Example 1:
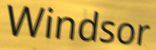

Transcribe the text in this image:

Windsor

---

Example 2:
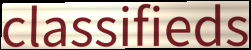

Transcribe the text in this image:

classifieds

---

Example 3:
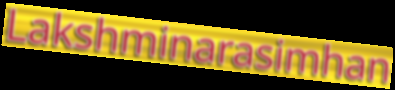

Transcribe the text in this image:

Lakshminarasimhan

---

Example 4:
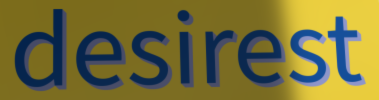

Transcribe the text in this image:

desirest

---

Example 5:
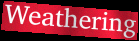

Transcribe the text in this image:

Weathering